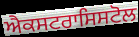
ਐਕਸਟਰਾਸਿਸਟੋਲ